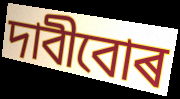
দাবীবোৰ